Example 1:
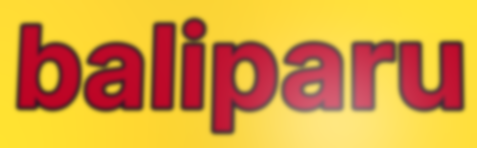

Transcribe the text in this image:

baliparu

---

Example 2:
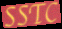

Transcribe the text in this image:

SSTC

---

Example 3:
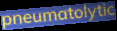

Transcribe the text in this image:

pneumatolytic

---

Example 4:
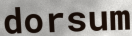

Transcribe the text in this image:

dorsum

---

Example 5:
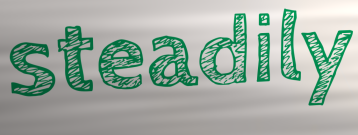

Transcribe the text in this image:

steadily